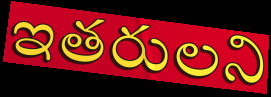
ఇతరులని